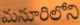
మసూరిలోని